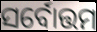
ସର୍ବୋତ୍ତମ